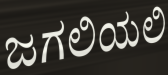
ಜಗಲಿಯಲಿ